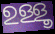
ഉള്ളൂ